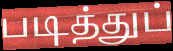
படித்துப்